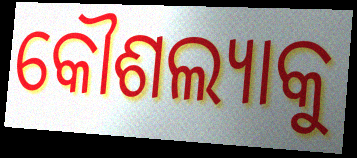
କୌଶଲ୍ୟାକୁ